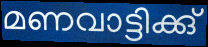
മണവാട്ടിക്കു്